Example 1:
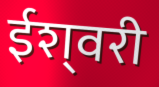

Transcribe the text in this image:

ईश्वरी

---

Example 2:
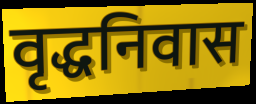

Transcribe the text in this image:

वृद्धनिवास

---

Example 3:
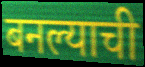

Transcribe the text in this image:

बनल्याची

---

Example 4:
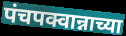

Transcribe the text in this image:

पंचपक्वान्नाच्या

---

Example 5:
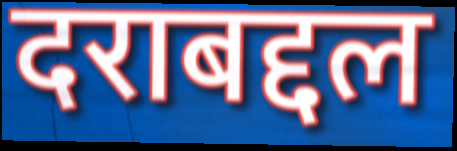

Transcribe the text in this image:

दराबद्दल